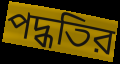
পদ্ধতির